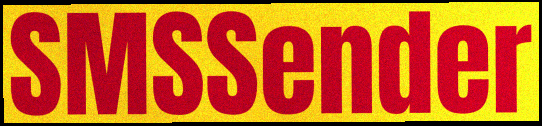
SMSSender